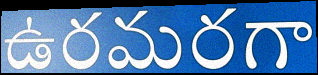
ఉరమరగా